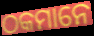
ଠକମାନେ